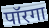
पॉरगा